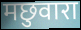
मछुवारा